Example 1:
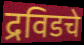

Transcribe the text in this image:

द्रविडचे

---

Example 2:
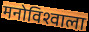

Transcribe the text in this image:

मनोविश्वाला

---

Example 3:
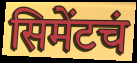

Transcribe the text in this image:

सिमेंटचं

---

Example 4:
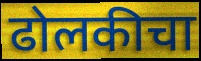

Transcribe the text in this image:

ढोलकीचा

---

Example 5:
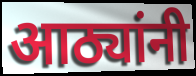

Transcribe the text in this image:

आठ्यांनी